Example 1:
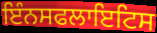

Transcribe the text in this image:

ਇੰਨਸਫਲਾਇਟਿਸ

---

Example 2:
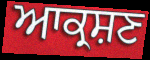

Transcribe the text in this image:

ਆਕ੍ਰਸ਼ਣ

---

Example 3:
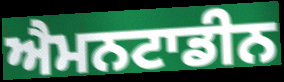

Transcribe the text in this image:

ਐਮਨਟਾਡੀਨ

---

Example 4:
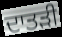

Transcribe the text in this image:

ਦਾਤੜੀ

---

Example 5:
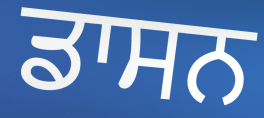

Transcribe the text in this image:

ਡਾਸਨ